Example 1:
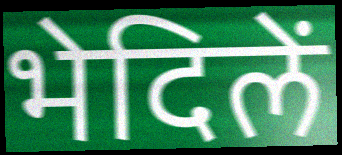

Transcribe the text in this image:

भेदिलें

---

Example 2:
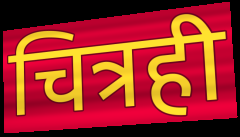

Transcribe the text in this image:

चित्रही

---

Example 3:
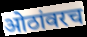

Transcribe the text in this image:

ओठांवरच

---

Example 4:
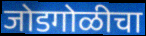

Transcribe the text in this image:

जोडगोळीचा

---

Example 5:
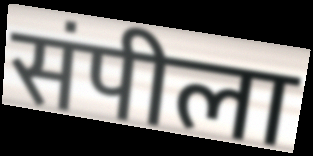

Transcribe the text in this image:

संपीला